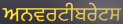
ਅਨਵਰਟੀਬਰੇਟਸ